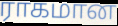
ராகமான